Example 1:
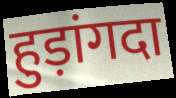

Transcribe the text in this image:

हुड़ांगदा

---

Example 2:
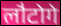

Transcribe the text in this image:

लौटोगे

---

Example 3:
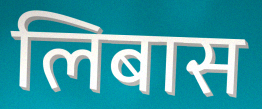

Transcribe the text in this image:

लिबास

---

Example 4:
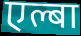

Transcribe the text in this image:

एल्बा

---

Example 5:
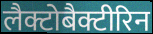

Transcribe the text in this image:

लैक्टोबैक्टीरिन